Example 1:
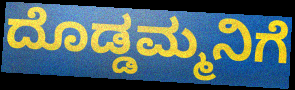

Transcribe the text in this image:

ದೊಡ್ಡಮ್ಮನಿಗೆ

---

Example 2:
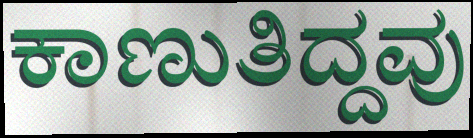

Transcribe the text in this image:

ಕಾಣುತಿದ್ದವು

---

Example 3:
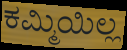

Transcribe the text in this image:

ಕಮ್ಮಿಯಿಲ್ಲ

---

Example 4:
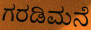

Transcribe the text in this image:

ಗರಡಿಮನೆ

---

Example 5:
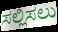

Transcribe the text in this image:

ಸಲ್ಲಿಸಲು